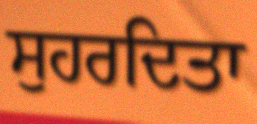
ਸੁਹਰਦਿਤਾ